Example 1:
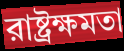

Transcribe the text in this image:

রাষ্ট্রক্ষমতা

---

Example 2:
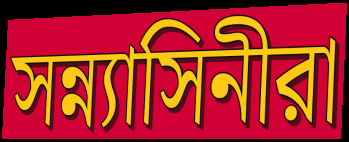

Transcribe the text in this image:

সন্ন্যাসিনীরা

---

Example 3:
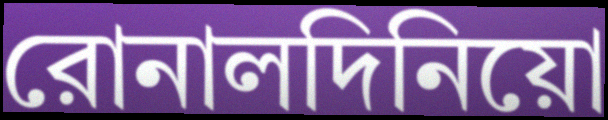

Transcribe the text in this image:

রোনালদিনিয়ো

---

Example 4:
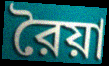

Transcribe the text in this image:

রৈয়া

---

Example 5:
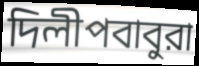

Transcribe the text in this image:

দিলীপবাবুরা